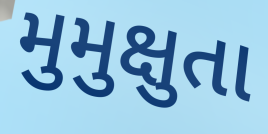
મુમુક્ષુતા